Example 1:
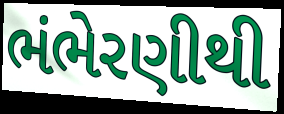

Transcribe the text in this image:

ભંભેરણીથી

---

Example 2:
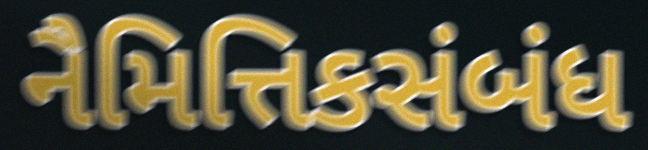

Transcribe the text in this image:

નૈમિત્તિકસંબંધ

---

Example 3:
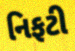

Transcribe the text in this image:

નિફટી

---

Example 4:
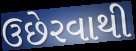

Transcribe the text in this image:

ઉછેરવાથી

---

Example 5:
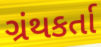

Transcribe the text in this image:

ગ્રંથકર્તા